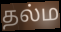
தல்ம